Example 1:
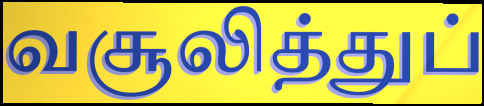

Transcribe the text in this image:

வசூலித்துப்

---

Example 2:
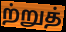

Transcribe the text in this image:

ற்றுத்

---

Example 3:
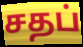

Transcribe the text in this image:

சதப்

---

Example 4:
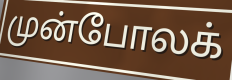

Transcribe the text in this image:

முன்போலக்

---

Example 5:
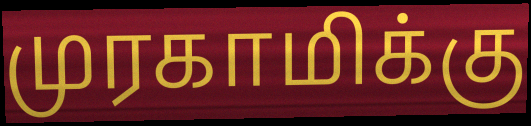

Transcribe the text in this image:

முரகாமிக்கு